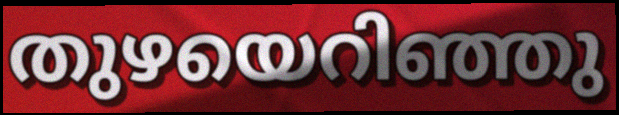
തുഴയെറിഞ്ഞു